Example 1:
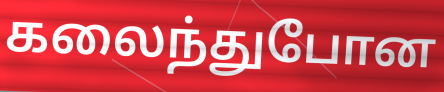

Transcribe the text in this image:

கலைந்துபோன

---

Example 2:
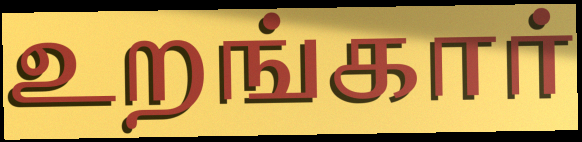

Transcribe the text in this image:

உறங்கார்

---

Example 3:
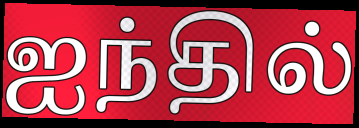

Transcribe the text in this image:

ஐந்தில்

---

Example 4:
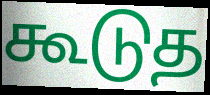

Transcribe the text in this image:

கூடுத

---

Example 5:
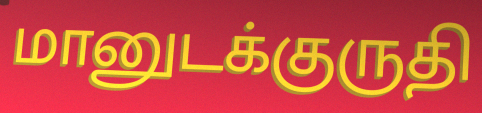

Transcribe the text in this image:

மானுடக்குருதி